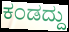
ಕಂಡದ್ದು